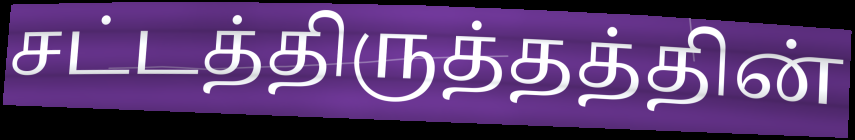
சட்டத்திருத்தத்தின்